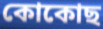
কোকোছ